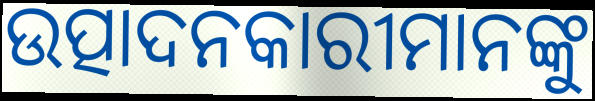
ଉତ୍ପାଦନକାରୀମାନଙ୍କୁ